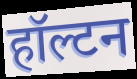
हॉल्टन